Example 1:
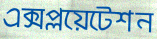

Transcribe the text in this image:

এক্সপ্লয়েটেশন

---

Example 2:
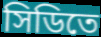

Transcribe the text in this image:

সিডিতে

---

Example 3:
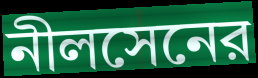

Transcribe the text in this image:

নীলসেনের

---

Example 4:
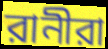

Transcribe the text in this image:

রানীরা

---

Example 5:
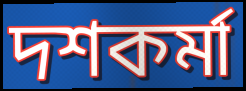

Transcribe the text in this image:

দশকর্মা